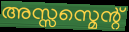
അസ്സസ്മെന്റ്